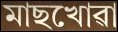
মাছখোৱা